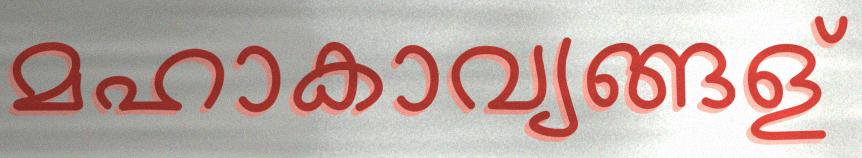
മഹാകാവ്യങ്ങള്